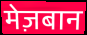
मेज़बान